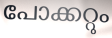
പോക്കറ്റും